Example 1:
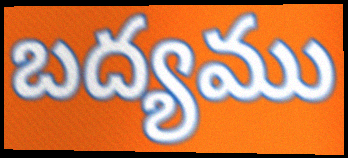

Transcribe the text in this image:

బద్యము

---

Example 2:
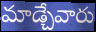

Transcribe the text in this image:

మాడ్చేవారు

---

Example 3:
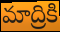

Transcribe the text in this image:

మాద్రికి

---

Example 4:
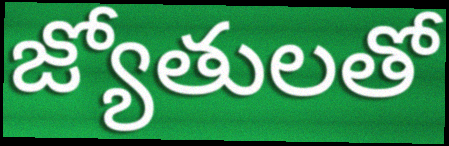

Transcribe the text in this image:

జ్యోతులతో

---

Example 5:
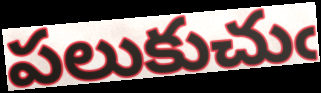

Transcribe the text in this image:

పలుకుచుఁ